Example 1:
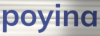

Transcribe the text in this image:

poyina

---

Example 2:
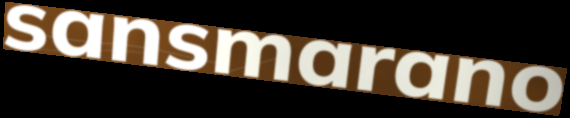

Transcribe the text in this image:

sansmarano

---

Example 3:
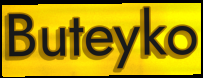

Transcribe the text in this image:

Buteyko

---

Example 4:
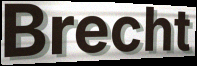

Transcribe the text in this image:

Brecht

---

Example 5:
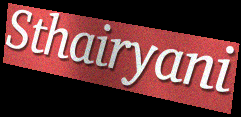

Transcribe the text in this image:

Sthairyani